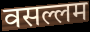
वसल्लम